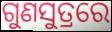
ଗୁଣସୁତ୍ରରେ